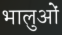
भालुओं